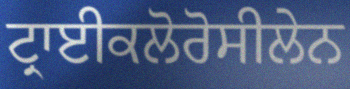
ਟ੍ਰਾਈਕਲੋਰੋਸੀਲੇਨ